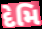
દેમિ